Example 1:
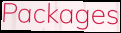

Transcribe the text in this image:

Packages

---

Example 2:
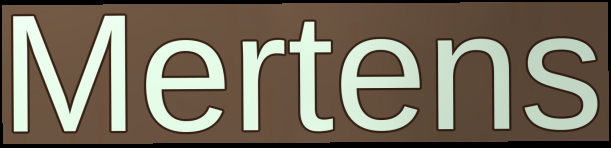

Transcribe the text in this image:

Mertens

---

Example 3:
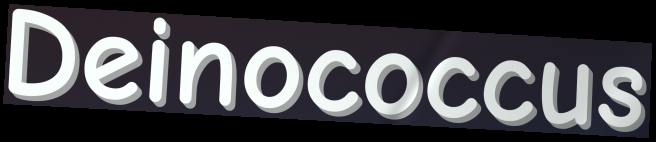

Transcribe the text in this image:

Deinococcus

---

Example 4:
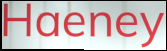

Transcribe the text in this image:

Haeney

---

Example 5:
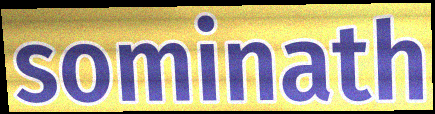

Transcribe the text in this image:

sominath